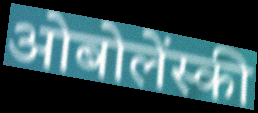
ओबोलेंस्की